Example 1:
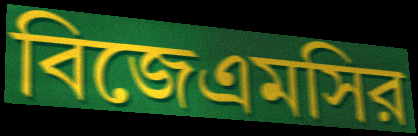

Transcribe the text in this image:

বিজেএমসির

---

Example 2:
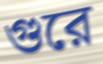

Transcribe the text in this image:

গুরে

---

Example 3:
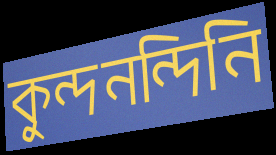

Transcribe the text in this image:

কুন্দনন্দিনি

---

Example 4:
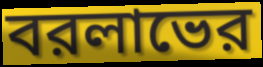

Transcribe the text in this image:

বরলাভের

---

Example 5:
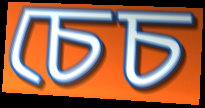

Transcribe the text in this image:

চেচ